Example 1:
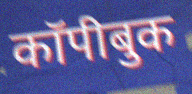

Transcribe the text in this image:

कॉपीबुक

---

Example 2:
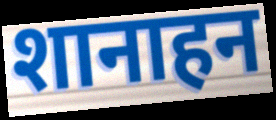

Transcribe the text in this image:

शानाहन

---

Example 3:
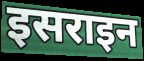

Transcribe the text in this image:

इसराइन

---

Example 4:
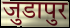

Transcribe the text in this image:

जुडापुर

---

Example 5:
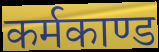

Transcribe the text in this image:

कर्मकाण्ड